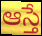
ఆస్తే